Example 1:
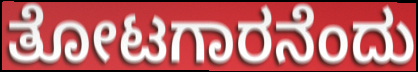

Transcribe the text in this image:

ತೋಟಗಾರನೆಂದು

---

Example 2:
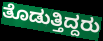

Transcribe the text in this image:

ತೊಡುತ್ತಿದ್ದರು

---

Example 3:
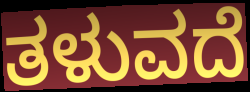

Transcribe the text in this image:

ತಳುವದೆ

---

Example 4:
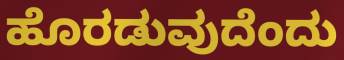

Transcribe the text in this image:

ಹೊರಡುವುದೆಂದು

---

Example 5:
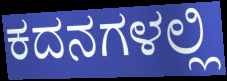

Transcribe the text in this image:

ಕದನಗಳಲ್ಲಿ